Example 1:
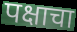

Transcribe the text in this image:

पक्षाचा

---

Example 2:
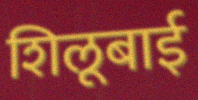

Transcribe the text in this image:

शिलूबाई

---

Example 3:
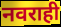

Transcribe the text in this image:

नवराही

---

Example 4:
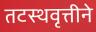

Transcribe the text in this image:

तटस्थवृत्तीने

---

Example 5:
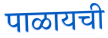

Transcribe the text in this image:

पाळायची